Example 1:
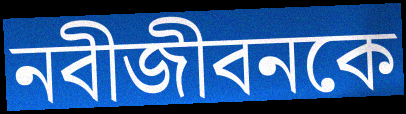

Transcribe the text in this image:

নবীজীবনকে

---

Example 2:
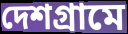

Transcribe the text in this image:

দেশগ্রামে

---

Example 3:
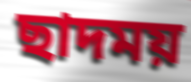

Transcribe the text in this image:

ছাদময়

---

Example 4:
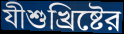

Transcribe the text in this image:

যীশুখ্রিষ্টের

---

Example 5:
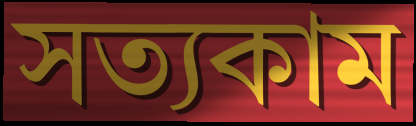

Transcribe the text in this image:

সত্যকাম